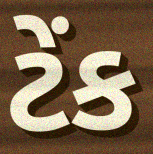
ટેંક